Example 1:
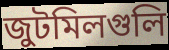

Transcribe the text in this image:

জুটমিলগুলি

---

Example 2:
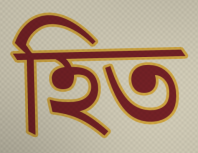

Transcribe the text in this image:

হিত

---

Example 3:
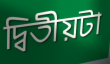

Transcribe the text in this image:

দ্বিতীয়টা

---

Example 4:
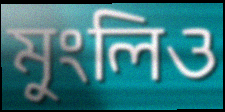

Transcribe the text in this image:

মুংলিও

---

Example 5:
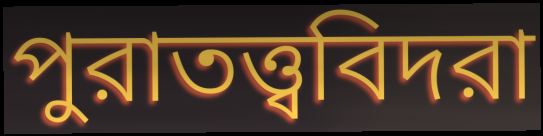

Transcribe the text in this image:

পুরাতত্ত্ববিদরা